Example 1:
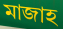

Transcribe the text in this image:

মাজাহ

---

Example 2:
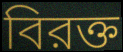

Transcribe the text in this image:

বিরক্ত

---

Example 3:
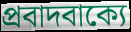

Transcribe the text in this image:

প্রবাদবাক্যে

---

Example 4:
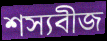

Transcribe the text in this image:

শস্যবীজ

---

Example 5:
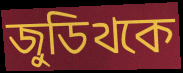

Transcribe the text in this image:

জুডিথকে